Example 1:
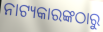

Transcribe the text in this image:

ନାଟ୍ୟକାରଙ୍କଠାରୁ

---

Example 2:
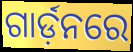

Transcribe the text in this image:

ଗାର୍ଡ଼ନରେ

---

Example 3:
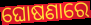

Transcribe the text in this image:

ଘୋଷଣାରେ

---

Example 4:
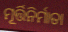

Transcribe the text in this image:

ମୂର୍ତ୍ତିନିର୍ମାତା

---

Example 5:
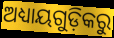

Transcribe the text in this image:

ଅଧ୍ୟାୟଗୁଡ଼ିକରୁ